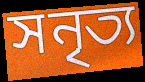
সনৃত্য